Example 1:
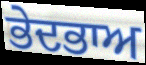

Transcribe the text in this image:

ਭੇਦਭਾਅ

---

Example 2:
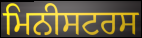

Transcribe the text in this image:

ਮਿਨੀਸਟਰਸ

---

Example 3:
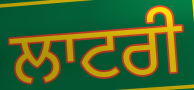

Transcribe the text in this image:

ਲਾਟਰੀ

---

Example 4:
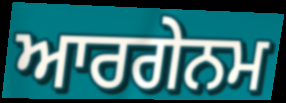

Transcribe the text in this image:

ਆਰਗੇਨਮ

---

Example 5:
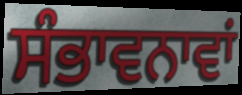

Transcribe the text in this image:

ਸੰਭਾਵਨਾਵਾਂ